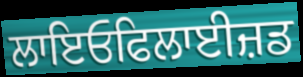
ਲਾਇਓਫਿਲਾਈਜ਼ਡ